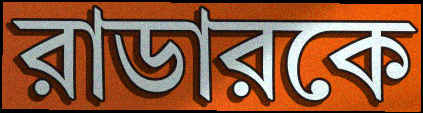
রাডারকে